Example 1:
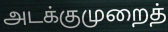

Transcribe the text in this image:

அடக்குமுறைத்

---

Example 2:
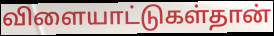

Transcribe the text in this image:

விளையாட்டுகள்தான்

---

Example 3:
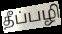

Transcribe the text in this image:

தீப்பழி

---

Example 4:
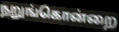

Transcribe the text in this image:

நறுங்கொன்றை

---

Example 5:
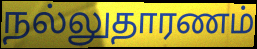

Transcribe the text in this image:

நல்லுதாரணம்